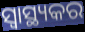
ସ୍ୱାସ୍ଥ୍ୟକର